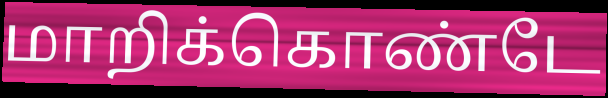
மாறிக்கொண்டே